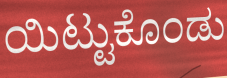
ಯಿಟ್ಟುಕೊಂಡು